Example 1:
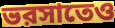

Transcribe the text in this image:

ভরসাতেও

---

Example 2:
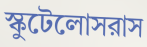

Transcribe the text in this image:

স্কুটেলোসরাস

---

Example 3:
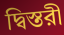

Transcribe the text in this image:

দ্বিস্তরী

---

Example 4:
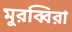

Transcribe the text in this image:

মুরব্বিরা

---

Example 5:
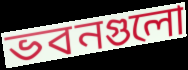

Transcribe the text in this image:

ভবনগুলো